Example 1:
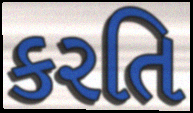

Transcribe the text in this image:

કરતિ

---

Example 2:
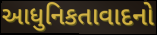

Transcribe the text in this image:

આધુનિકતાવાદનો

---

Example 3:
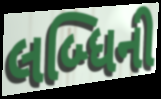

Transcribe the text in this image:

લબ્ધિની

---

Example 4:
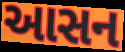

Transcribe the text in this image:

આસન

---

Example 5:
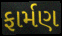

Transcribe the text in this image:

ફાર્મણ